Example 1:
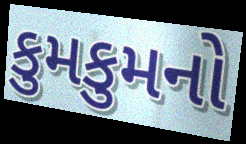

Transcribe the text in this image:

કુમકુમનો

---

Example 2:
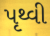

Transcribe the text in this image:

પૃથ્વી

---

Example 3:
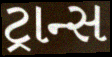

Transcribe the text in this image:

ટ્રાન્સ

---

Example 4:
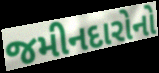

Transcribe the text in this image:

જમીનદારોનો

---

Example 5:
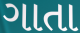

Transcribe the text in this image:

ગાતા